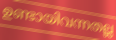
ഉണ്ടായിവന്നതല്ല